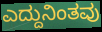
ಎದ್ದುನಿಂತವು